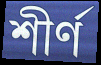
শীৰ্ণ